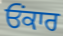
ਓਂਕਾਰ